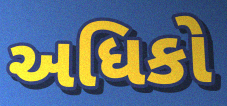
અધિકો